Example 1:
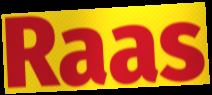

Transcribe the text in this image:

Raas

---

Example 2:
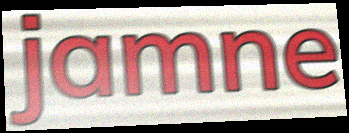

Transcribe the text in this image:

jamne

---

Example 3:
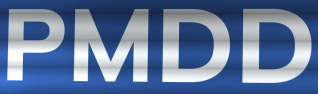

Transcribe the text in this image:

PMDD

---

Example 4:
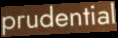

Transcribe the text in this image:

prudential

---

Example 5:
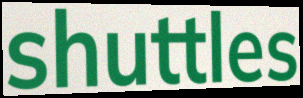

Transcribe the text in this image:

shuttles